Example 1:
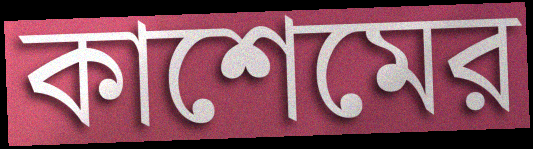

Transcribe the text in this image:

কাশেমের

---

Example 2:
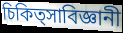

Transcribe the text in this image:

চিকিত্সাবিজ্ঞানী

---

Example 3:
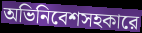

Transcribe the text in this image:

অভিনিবেশসহকারে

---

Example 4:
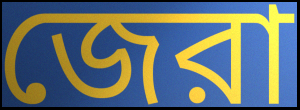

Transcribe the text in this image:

জেরা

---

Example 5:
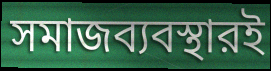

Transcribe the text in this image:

সমাজব্যবস্থারই